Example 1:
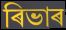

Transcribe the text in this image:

ৰিভাৰ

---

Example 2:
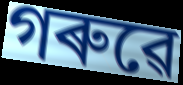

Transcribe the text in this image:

গৰুৱে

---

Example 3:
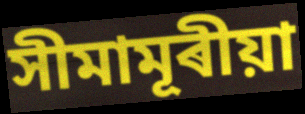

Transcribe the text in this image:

সীমামূৰীয়া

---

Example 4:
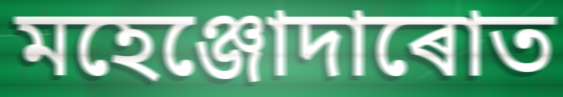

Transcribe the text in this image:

মহেঞ্জোদাৰোত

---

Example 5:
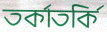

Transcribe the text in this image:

তৰ্কাতৰ্কি